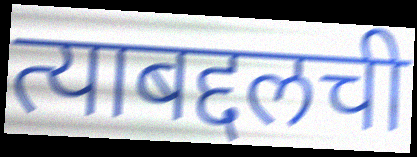
त्याबद्दलची